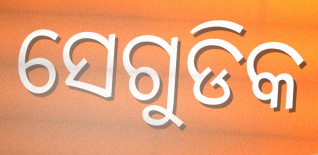
ସେଗୁଡିକ